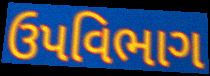
ઉપવિભાગ